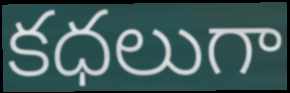
కధలుగా